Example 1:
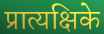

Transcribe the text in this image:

प्रात्यक्षिके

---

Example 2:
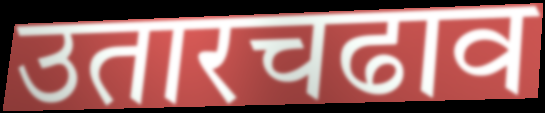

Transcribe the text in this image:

उतारचढाव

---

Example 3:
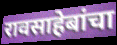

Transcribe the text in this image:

रावसाहेबांचा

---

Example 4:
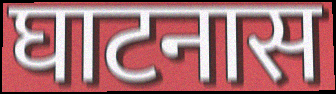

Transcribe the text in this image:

घाटनास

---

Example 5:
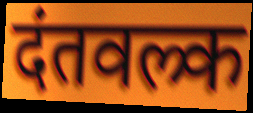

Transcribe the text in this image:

दंतवल्क